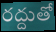
రద్దుతో